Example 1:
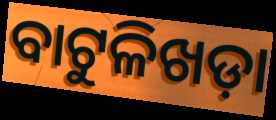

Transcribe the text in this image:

ବାଟୁଳିଖଡ଼ା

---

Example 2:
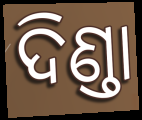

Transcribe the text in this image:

ଦିଣ୍ଡା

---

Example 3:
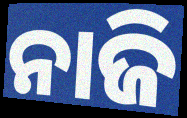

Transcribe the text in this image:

ନାଜି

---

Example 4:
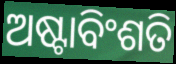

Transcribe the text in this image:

ଅଷ୍ଟାବିଂଶତି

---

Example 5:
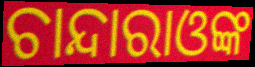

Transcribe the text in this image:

ଚାନ୍ଦାରାଓଙ୍କ